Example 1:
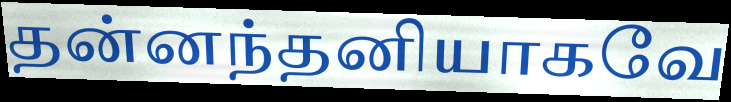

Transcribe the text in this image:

தன்னந்தனியாகவே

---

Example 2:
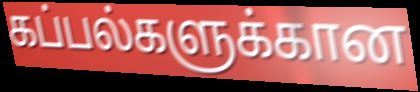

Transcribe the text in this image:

கப்பல்களுக்கான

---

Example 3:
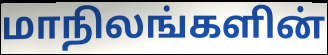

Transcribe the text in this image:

மாநிலங்களின்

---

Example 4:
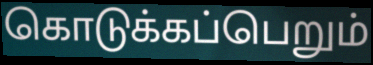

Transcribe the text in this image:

கொடுக்கப்பெறும்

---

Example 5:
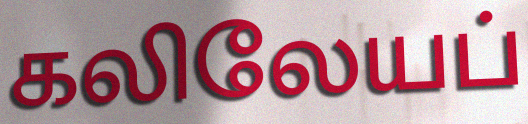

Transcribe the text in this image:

கலிலேயப்